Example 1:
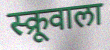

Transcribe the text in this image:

स्क्रूवाला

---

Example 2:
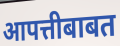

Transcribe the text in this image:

आपत्तीबाबत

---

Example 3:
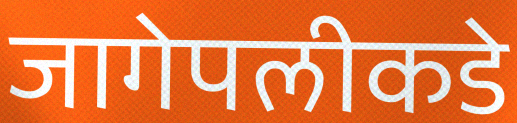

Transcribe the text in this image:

जागेपलीकडे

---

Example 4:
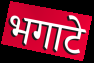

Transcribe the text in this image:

भगाटे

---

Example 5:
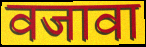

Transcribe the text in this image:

वजावा